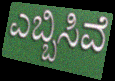
ಎಬ್ಬಿಸಿವೆ